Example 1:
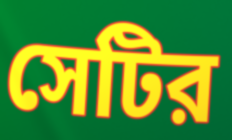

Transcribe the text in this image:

সেটির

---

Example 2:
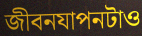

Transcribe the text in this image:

জীবনযাপনটাও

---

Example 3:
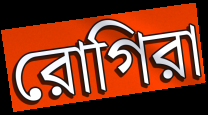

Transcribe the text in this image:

রোগিরা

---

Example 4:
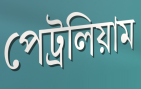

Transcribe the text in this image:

পেট্রলিয়াম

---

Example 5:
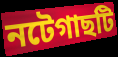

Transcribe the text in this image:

নটেগাছটি